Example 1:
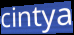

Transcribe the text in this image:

cintya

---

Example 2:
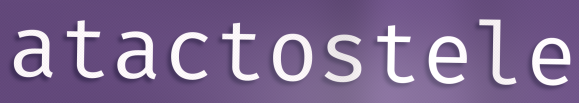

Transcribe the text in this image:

atactostele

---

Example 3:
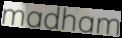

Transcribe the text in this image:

madham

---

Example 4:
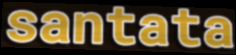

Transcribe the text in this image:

santata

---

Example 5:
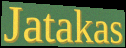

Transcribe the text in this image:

Jatakas